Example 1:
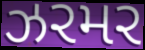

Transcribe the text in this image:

ઝરમર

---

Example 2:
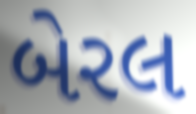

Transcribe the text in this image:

બેરલ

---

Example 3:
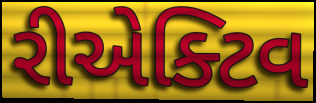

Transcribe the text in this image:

રીએક્ટિવ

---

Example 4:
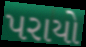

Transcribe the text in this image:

પરાયો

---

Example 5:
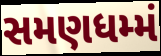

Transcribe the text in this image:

સમણધમ્મં